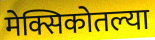
मेक्सिकोतल्या